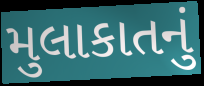
મુલાકાતનું